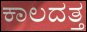
ಕಾಲದತ್ತ